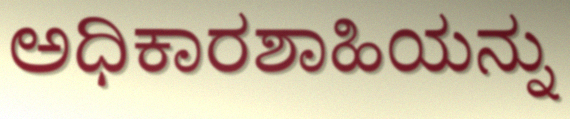
ಅಧಿಕಾರಶಾಹಿಯನ್ನು